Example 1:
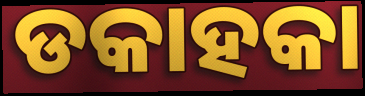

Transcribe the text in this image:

ଡକାହକା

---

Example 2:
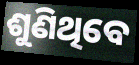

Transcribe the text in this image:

ଶୁଣିଥିବେ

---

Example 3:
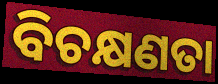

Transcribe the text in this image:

ବିଚକ୍ଷଣତା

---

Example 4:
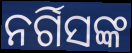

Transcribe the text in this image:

ନର୍ଗିସଙ୍କ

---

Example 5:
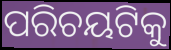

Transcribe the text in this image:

ପରିଚୟଟିକୁ